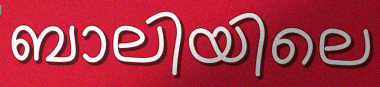
ബാലിയിലെ